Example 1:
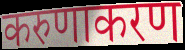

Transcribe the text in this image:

करुणाकरण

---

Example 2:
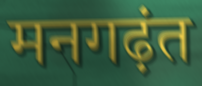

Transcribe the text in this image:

मनगढ़ंत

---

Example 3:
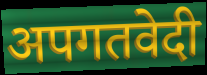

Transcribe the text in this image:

अपगतवेदी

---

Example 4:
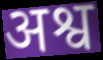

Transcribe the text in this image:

अश्व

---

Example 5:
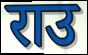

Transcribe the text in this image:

राउ